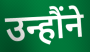
उन्हौंने